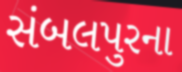
સંબલપુરના